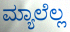
ಮ್ಯಾಲೆಲ್ಲ